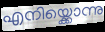
എനിയ്ക്കൊന്നു